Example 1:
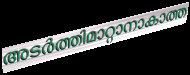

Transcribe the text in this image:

അടർത്തിമാറ്റാനാകാത്ത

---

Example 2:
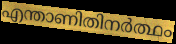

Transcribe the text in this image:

എന്താണിതിനർത്ഥം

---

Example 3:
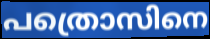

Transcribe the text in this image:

പത്രൊസിനെ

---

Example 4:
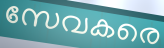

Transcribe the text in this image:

സേവകരെ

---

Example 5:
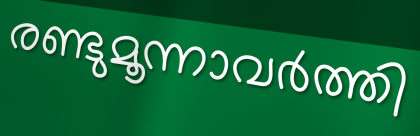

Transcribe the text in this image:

രണ്ടുമൂന്നാവർത്തി